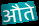
औते